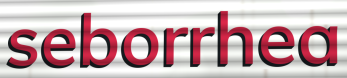
seborrhea